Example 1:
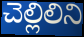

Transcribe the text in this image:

చెల్లిలిని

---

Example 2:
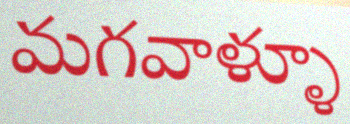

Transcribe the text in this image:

మగవాళ్ళూ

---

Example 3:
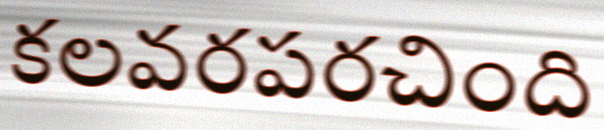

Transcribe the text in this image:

కలవరపరచింది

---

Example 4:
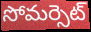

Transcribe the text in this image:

సోమర్సెట్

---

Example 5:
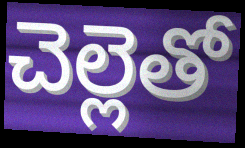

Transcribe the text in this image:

చెల్లెతో